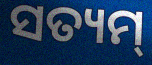
ସତ୍ୟମ୍